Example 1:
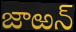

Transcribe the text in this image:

జాఱన్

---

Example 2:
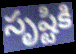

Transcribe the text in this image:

సృష్టికి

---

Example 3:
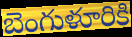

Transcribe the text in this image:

బెంగుళూరికి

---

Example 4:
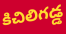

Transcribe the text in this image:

కిచిలిగడ్డ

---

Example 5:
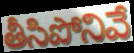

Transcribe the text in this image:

తీసిపోనివే